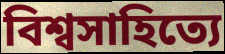
বিশ্বসাহিত্যে